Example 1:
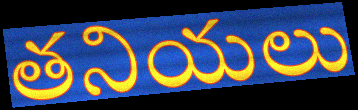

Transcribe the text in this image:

తనియలు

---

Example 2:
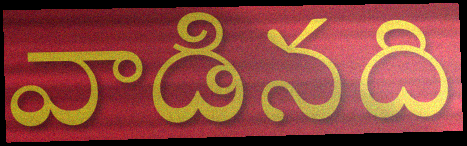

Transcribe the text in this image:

వాడినది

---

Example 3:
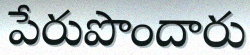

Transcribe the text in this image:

పేరుపొందారు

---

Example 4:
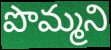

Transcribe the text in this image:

పొమ్మని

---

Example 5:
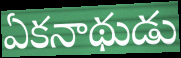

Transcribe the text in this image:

ఏకనాథుడు